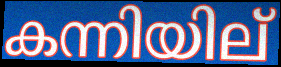
കന്നിയില്